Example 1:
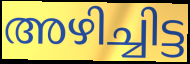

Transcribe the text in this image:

അഴിച്ചിട്ട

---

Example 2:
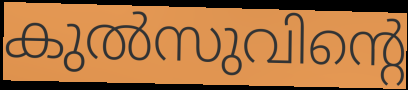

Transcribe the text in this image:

കുൽസുവിന്റെ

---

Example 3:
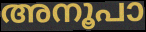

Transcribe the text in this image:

അനൂപാ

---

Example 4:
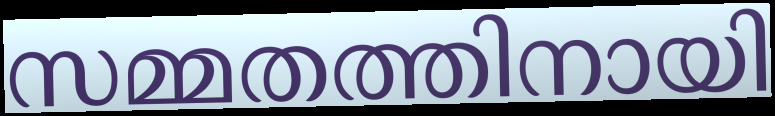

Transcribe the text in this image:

സമ്മതത്തിനായി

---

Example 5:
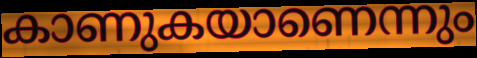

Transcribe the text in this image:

കാണുകയാണെന്നും